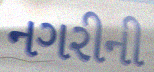
નગરીની